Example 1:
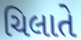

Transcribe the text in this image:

ચિલાતે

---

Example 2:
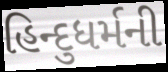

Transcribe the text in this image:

હિન્દુધર્મની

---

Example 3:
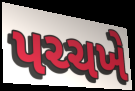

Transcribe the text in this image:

પચ્ચખે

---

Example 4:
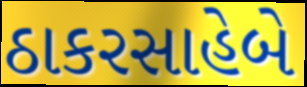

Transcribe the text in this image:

ઠાકરસાહેબે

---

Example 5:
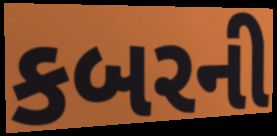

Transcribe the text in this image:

કબરની